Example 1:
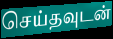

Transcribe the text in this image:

செய்தவுடன்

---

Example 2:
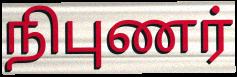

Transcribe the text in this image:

நிபுணர்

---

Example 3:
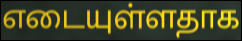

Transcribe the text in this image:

எடையுள்ளதாக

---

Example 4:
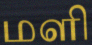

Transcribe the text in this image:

மளி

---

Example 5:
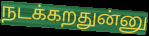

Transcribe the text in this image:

நடக்கறதுன்னு